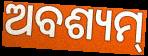
ଅବଶ୍ୟମ୍